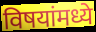
विषयांमध्ये